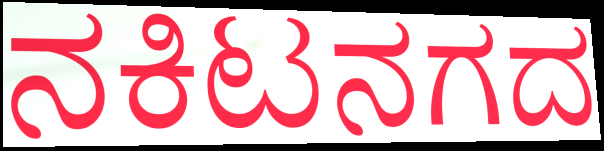
ನಕಿಟನಗದ